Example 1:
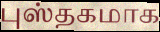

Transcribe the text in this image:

புஸ்தகமாக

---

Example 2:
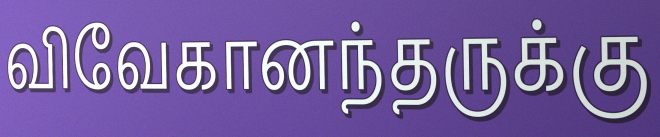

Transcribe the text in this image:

விவேகானந்தருக்கு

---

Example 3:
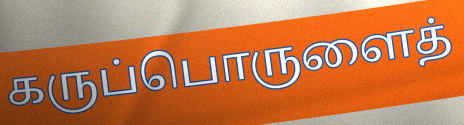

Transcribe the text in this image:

கருப்பொருளைத்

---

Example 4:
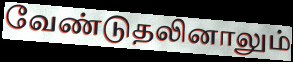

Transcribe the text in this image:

வேண்டுதலினாலும்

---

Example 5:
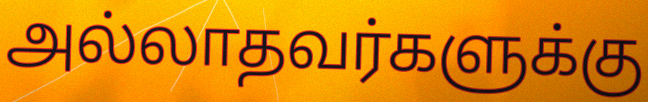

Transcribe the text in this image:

அல்லாதவர்களுக்கு